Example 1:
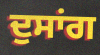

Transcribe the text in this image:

ਦੁਸਾਂਗ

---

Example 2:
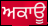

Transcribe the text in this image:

ਅਕਾਊ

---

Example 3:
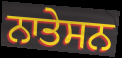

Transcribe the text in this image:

ਨਾਤੇਸਨ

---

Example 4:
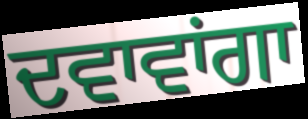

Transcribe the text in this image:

ਦਵਾਵਾਂਗਾ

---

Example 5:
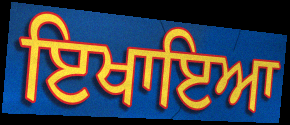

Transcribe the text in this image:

ਇਖਾਇਆ